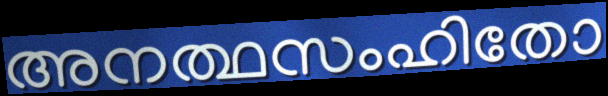
അനത്ഥസംഹിതോ